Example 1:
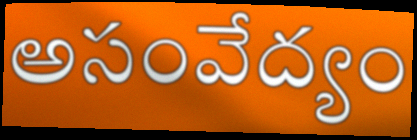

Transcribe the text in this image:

అసంవేద్యం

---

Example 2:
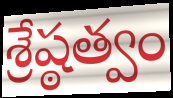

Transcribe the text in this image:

శ్రేష్ఠత్వం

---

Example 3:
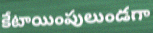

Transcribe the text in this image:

కేటాయింపులుండగా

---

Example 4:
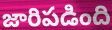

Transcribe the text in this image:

జారిపడింది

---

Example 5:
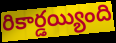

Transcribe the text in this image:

రికార్డయ్యింది